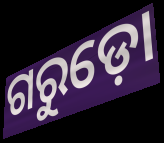
ଗରୁଡ଼ୋ